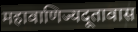
महावाणिज्यदूतावास